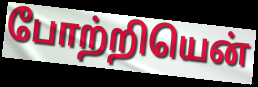
போற்றியென்